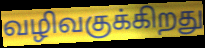
வழிவகுக்கிறது